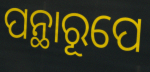
ପନ୍ଥାରୂପେ